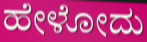
ಹೇಳೋದು